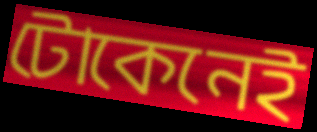
টোকেনেই